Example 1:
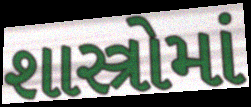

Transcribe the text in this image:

શાસ્ત્રોમાં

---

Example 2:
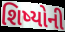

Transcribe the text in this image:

શિષ્યોની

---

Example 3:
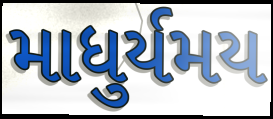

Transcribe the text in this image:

માધુર્યમય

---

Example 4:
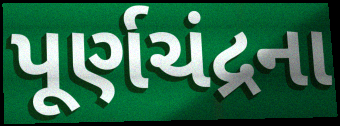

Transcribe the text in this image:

પૂર્ણચંદ્રના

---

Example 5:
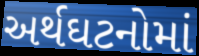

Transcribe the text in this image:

અર્થઘટનોમાં